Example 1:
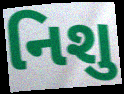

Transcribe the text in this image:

નિશુ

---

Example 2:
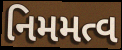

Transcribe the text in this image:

નિમમત્વ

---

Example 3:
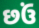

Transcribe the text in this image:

છઉં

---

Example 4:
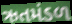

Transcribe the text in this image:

ઋતમંડળ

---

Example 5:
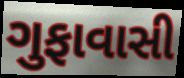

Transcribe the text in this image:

ગુફાવાસી